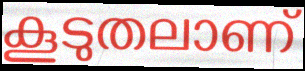
കൂടുതലാണ്